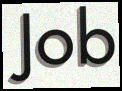
Job